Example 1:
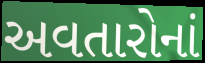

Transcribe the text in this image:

અવતારોનાં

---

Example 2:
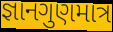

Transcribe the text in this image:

જ્ઞાનગુણમાત્ર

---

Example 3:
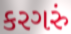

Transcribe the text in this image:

કરગરું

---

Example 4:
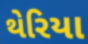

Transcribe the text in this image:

થેરિયા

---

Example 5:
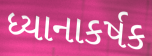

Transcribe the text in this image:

ધ્યાનાકર્ષક